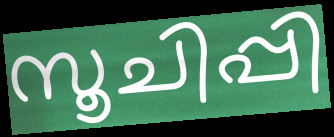
സൂചിപ്പി